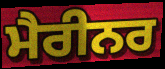
ਮੈਰੀਨਰ